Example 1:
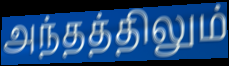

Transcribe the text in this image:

அந்தத்திலும்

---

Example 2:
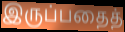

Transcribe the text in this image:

இருப்பதைத்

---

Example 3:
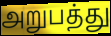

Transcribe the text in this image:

அறுபத்து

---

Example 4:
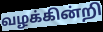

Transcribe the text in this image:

வழக்கின்றி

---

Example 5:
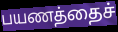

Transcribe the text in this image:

பயணத்தைச்